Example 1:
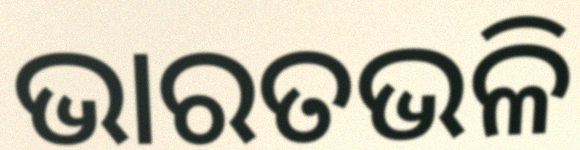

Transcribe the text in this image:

ଭାରତଭଳି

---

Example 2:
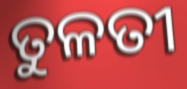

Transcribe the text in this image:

ତୁଳତୀ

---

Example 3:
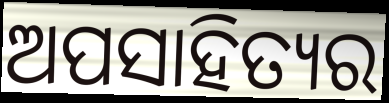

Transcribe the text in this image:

ଅପସାହିତ୍ୟର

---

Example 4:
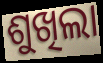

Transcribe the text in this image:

ଶୁଖିଲା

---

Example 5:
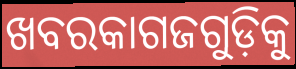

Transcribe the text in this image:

ଖବରକାଗଜଗୁଡ଼ିକୁ